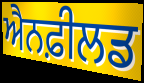
ਐਨਫ਼ੀਲਡ